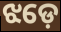
ଝଡ଼େ